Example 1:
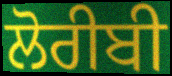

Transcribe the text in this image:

ਲੋਰੀਬੀ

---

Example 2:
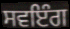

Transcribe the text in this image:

ਸਵਇੰਗ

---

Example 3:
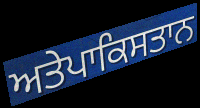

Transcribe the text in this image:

ਅਤੇਪਾਕਿਸਤਾਨ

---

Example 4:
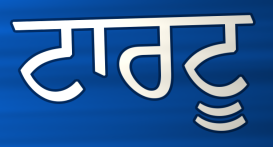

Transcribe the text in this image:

ਟਾਰਟੂ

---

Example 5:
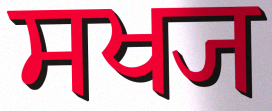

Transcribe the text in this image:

ਸਖ੍ਯ